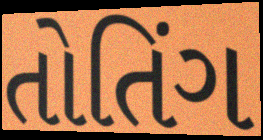
તોતિંગ